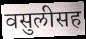
वसुलीसह